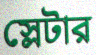
স্লেটার